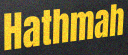
Hathmah